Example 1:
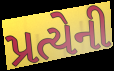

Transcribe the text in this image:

પ્રત્યેની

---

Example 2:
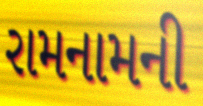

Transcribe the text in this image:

રામનામની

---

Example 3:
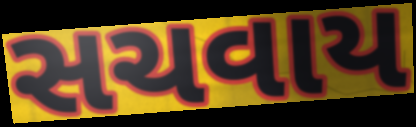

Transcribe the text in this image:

સચવાય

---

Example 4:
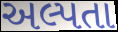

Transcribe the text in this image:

અલ્પતા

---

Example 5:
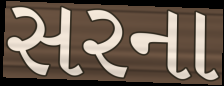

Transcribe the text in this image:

સરના